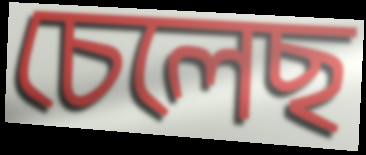
চেলেছ